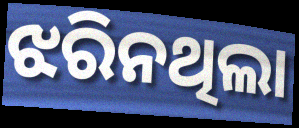
ଝରିନଥିଲା